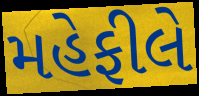
મહેફીલે